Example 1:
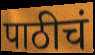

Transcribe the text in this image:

पाठीचं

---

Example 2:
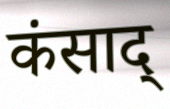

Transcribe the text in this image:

कंसाद्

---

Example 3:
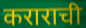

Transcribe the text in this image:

कराराची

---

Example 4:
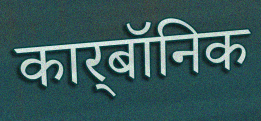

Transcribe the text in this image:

कार्‌बॉनिक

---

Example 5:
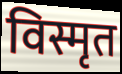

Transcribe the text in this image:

विस्मृत